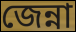
জেন্না